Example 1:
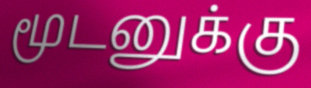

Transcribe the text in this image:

மூடனுக்கு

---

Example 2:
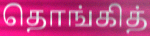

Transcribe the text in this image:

தொங்கித்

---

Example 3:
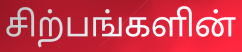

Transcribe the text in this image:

சிற்பங்களின்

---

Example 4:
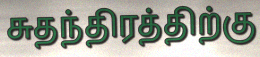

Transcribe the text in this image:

சுதந்திரத்திற்கு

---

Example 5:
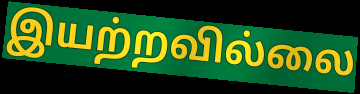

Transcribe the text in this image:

இயற்றவில்லை